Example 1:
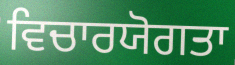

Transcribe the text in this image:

ਵਿਚਾਰਯੋਗਤਾ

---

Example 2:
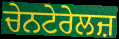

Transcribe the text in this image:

ਚੇਨਟੇਰੇਲਜ਼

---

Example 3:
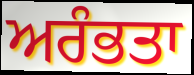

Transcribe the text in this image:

ਅਰੰਭਤਾ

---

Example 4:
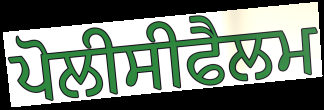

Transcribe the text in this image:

ਪੋਲੀਸੀਫੈਲਮ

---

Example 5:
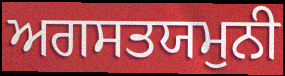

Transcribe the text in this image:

ਅਗਸਤਯਮੁਨੀ